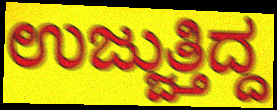
ಉಜ್ಜುತ್ತಿದ್ದ